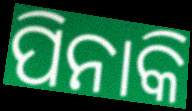
ପିନାକି